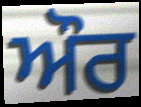
ਔਰ